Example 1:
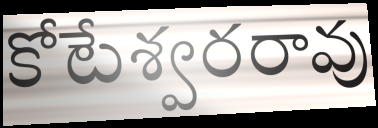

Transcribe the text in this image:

కోటేశ్వరరావు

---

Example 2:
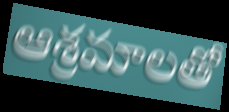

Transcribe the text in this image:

ఆశ్రమాలతో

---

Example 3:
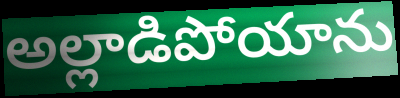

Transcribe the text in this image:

అల్లాడిపోయాను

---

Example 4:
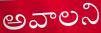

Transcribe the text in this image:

అవాలని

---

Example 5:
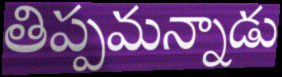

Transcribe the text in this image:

తిప్పమన్నాడు